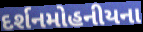
દર્શનમોહનીયના